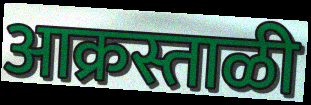
आक्रस्ताळी